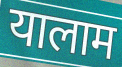
यालाम